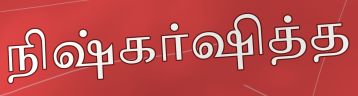
நிஷ்கர்ஷித்த